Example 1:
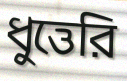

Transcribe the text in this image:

ধুত্তেরি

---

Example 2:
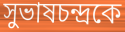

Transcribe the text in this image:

সুভাষচন্দ্রকে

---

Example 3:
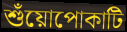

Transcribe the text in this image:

শুঁয়োপোকাটি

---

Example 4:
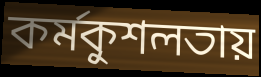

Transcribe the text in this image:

কর্মকুশলতায়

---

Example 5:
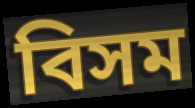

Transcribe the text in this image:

বিসম